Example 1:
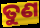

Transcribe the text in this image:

ତୁଣ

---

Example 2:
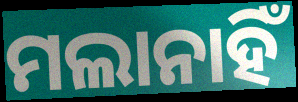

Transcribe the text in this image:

ମଲାନାହିଁ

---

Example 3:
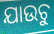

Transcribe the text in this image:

ଯାଉଚୁ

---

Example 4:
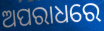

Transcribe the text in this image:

ଅପରାଧରେ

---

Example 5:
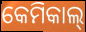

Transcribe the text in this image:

କେମିକାଲ୍